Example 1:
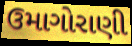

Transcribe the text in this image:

ઉમાગોરાણી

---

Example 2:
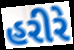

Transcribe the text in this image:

હરીરે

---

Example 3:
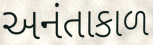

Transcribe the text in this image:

અનંતાકાળ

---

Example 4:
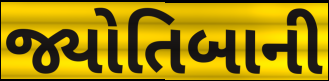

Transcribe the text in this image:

જ્યોતિબાની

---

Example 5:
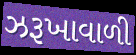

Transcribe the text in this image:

ઝરૂખાવાળી